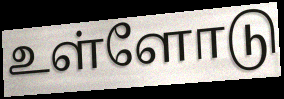
உள்ளோடு